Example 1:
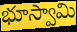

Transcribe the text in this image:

భూస్వామి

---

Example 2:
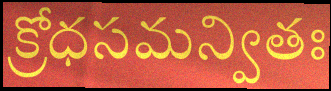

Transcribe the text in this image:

క్రోధసమన్వితః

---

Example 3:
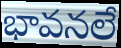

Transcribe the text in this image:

భావనలే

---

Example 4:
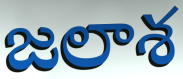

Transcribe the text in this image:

జలాశ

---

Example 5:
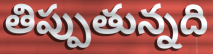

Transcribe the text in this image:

తిప్పుతున్నది